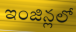
ఇంజిన్లలో